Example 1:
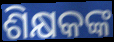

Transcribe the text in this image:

ଶିକ୍ଷକଙ୍କ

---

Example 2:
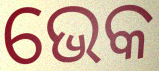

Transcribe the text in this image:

ଭେକ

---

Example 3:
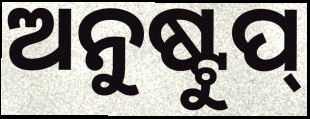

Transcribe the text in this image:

ଅନୁଷ୍ଟୁପ୍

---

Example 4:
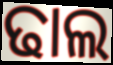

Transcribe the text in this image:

ଢାଲ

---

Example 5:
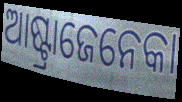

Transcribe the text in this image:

ଆଷ୍ଟ୍ରାଜେନେକା